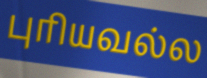
புரியவல்ல